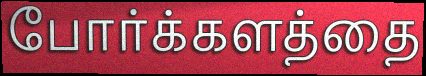
போர்க்களத்தை